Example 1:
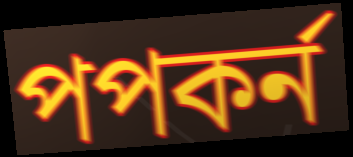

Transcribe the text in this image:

পপকর্ন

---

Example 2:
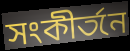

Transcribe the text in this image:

সংকীর্তনে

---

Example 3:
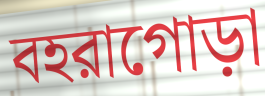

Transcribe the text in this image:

বহরাগোড়া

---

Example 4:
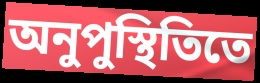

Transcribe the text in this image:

অনুপুস্থিতিতে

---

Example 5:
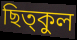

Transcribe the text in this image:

ছিত্কুল